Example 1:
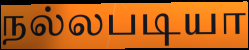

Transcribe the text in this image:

நல்லபடியா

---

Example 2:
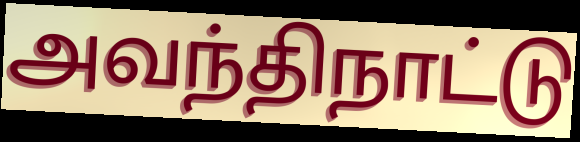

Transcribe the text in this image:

அவந்திநாட்டு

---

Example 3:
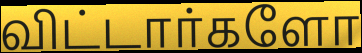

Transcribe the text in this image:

விட்டார்களோ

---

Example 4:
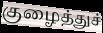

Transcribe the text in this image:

குழைத்துச்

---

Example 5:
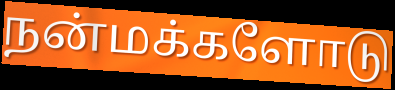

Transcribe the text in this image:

நன்மக்களோடு